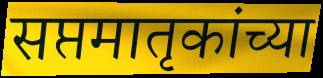
सप्तमातृकांच्या